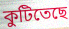
কুটিতেছে